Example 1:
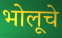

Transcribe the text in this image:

भोलूचे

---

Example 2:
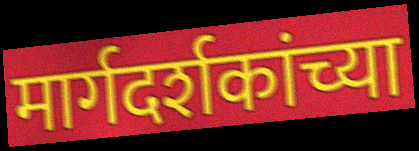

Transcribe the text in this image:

मार्गदर्शकांच्या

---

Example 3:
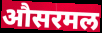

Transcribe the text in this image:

औसरमल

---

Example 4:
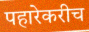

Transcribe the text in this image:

पहारेकरीच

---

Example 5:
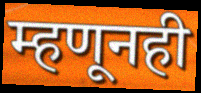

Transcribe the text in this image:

म्हणूनही